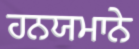
ਹਨਯਮਾਨੇ